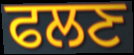
ਫਲਣ